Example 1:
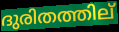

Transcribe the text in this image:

ദുരിതത്തില്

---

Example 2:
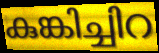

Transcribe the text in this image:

കുങ്കിച്ചിറ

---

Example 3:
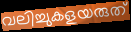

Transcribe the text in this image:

വലിച്ചുകളയരുത്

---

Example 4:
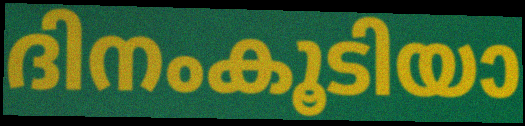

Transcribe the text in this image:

ദിനംകൂടിയാ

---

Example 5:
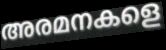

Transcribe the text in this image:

അരമനകളെ